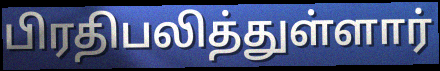
பிரதிபலித்துள்ளார்